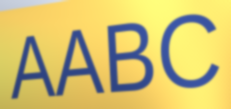
AABC